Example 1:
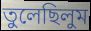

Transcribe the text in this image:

তুলেছিলুম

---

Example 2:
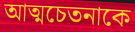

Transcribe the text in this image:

আত্মচেতনাকে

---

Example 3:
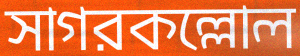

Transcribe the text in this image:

সাগরকল্লোল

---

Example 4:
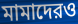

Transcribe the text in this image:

মামাদেরও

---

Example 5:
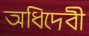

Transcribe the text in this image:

অধিদেবী